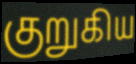
குறுகிய